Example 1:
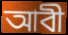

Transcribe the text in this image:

আবী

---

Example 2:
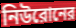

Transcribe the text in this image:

নিউরোনের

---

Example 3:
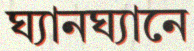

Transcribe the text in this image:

ঘ্যানঘ্যানে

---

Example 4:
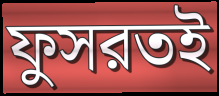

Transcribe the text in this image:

ফুসরতই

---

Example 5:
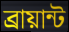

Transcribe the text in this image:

ব্রায়ান্ট